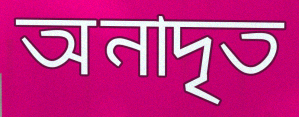
অনাদৃত